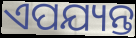
ଏପଯ୍ୟନ୍ତ